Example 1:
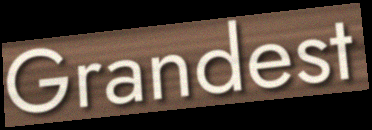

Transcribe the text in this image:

Grandest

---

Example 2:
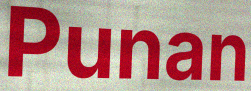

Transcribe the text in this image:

Punan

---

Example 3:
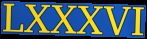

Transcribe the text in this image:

LXXXVI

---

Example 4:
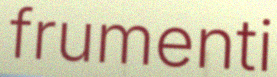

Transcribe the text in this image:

frumenti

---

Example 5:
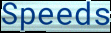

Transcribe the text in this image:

Speeds